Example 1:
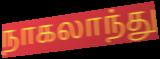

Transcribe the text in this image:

நாகலாந்து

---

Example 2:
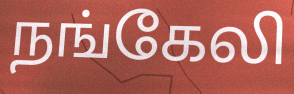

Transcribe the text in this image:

நங்கேலி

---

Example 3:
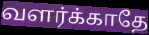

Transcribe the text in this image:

வளர்க்காதே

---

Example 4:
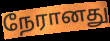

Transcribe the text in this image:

நேரானது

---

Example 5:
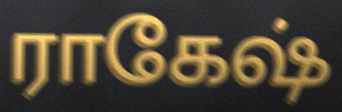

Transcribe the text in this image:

ராகேஷ்